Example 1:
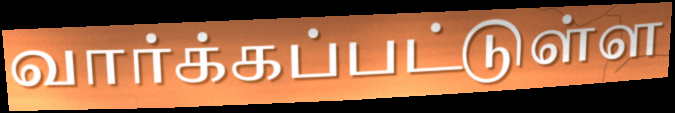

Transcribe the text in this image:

வார்க்கப்பட்டுள்ள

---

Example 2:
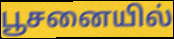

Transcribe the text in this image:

பூசனையில்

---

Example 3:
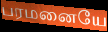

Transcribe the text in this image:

பரமனையே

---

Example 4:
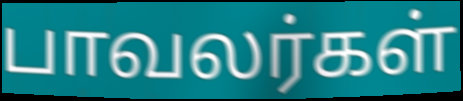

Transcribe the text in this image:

பாவலர்கள்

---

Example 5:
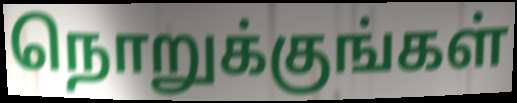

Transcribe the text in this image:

நொறுக்குங்கள்